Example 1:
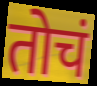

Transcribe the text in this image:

तोचं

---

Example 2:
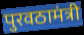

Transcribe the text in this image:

पुरवठामंत्री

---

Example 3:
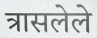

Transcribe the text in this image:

त्रासलेले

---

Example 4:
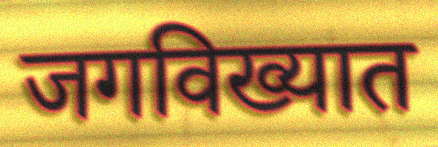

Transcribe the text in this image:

जगविख्यात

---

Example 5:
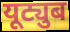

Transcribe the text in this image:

यूट्युब